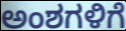
ಅಂಶಗಳಿಗೆ